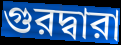
গুরদ্বারা